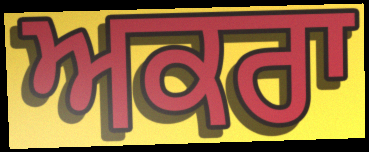
ਅਕਰਾ